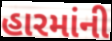
હારમાંની